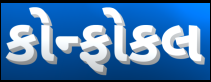
કોન્ફોકલ